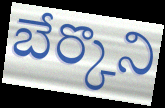
బేర్కొని